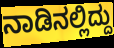
ನಾಡಿನಲ್ಲಿದ್ದು